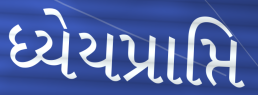
ધ્યેયપ્રાપ્તિ